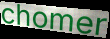
chomer